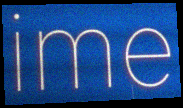
ime